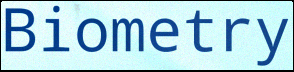
Biometry